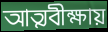
আত্মবীক্ষায়